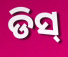
ଡିସ୍